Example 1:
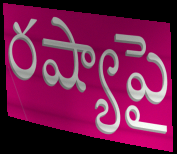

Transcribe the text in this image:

రష్యాపై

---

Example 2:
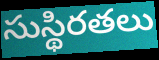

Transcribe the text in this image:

సుస్థిరతలు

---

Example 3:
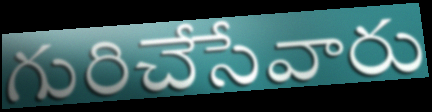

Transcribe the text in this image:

గురిచేసేవారు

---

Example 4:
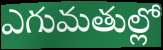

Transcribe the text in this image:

ఎగుమతుల్లో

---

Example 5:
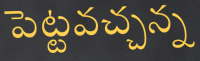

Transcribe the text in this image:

పెట్టవచ్చన్న